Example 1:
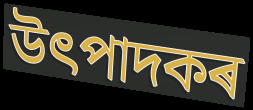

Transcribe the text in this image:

উৎপাদকৰ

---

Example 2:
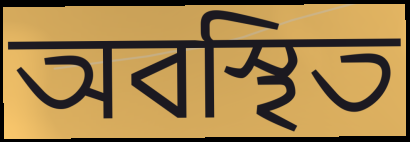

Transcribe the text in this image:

অবস্থিত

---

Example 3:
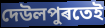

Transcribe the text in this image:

দেউলপুৰতেই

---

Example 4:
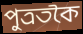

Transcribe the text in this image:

পুত্ৰতকৈ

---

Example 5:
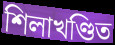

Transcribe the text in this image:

শিলাখণ্ডিত